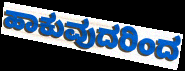
ಹಾಕುವುದರಿಂದ